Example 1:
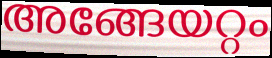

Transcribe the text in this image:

അങ്ങേയറ്റം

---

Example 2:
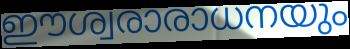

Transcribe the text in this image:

ഈശ്വരാരാധനയും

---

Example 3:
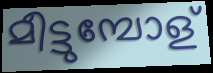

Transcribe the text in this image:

മീട്ടുമ്പോള്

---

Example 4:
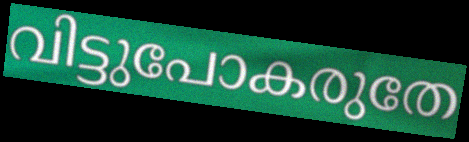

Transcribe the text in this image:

വിട്ടുപോകരുതേ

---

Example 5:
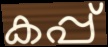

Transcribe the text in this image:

കപ്പ്